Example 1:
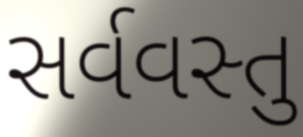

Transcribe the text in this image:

સર્વવસ્તુ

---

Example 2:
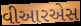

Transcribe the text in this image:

વીઆરએસ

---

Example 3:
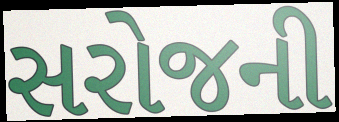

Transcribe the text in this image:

સરોજની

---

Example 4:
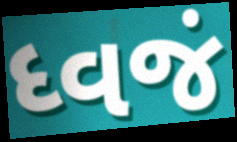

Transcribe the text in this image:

ધ્વજં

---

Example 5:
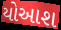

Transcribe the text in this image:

યોઆશ